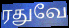
ரதுவே